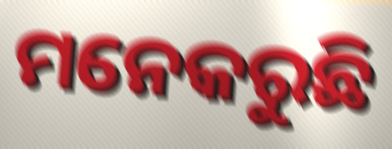
ମନେକରୁଛି